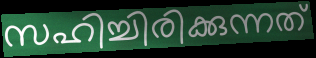
സഹിച്ചിരിക്കുന്നത്